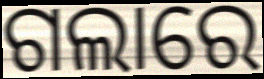
ଗଲାରେ